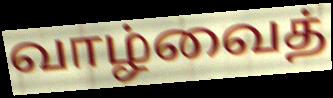
வாழ்வைத்